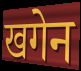
खगेन